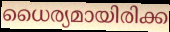
ധൈര്യമായിരിക്ക